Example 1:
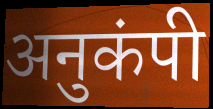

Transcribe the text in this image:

अनुकंपी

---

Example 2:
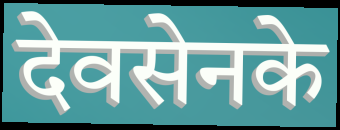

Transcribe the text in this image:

देवसेनके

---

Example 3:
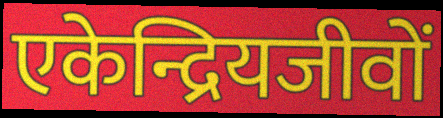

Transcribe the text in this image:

एकेन्द्रियजीवों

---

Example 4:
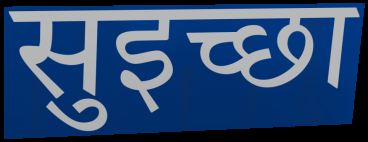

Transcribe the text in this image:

सुइच्छा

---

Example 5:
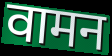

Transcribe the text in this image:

वामन